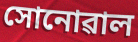
সোনোৱাল